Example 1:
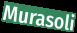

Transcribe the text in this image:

Murasoli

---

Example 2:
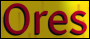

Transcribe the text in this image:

Ores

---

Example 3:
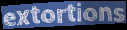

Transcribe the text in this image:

extortions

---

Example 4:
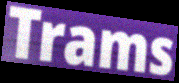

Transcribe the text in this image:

Trams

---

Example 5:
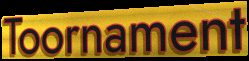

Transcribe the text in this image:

Toornament